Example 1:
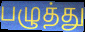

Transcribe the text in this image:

பழுத்து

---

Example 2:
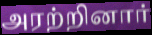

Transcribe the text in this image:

அரற்றினார்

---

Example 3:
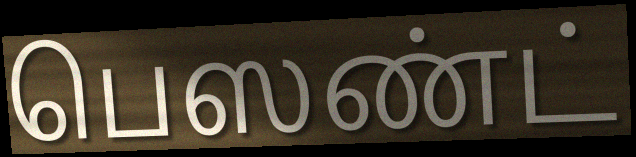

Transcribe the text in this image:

பெஸண்ட்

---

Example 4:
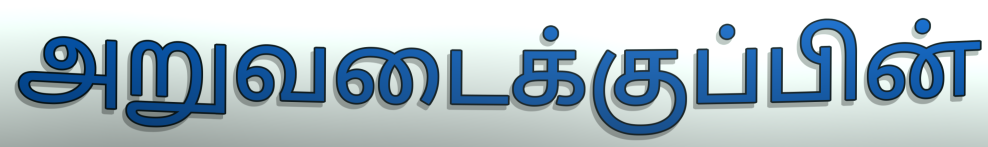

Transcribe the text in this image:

அறுவடைக்குப்பின்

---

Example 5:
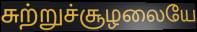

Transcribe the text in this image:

சுற்றுச்சூழலையே